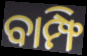
ବାମ୍ଫି